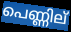
പെണ്ണില്